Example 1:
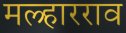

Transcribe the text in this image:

मल्हारराव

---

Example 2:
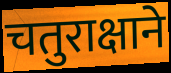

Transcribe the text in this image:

चतुराक्षाने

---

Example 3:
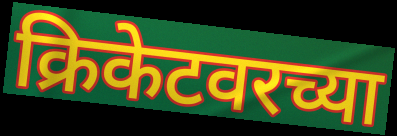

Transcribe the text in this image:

क्रिकेटवरच्या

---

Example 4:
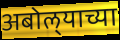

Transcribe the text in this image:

अबोल्याच्या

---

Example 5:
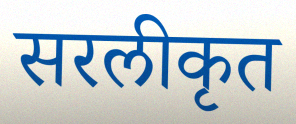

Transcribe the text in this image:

सरलीकृत